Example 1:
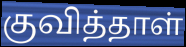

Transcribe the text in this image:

குவித்தாள்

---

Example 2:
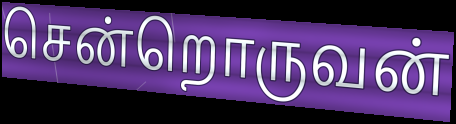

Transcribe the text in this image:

சென்றொருவன்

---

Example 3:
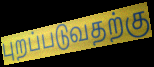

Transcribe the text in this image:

புறப்படுவதற்கு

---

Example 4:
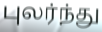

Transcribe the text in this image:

புலர்ந்து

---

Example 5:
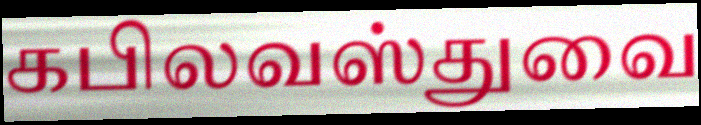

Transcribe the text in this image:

கபிலவஸ்துவை